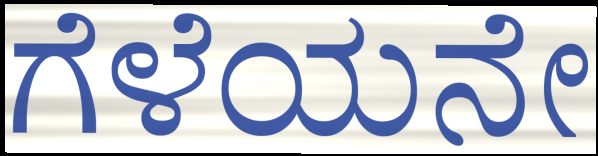
ಗೆಳೆಯನೇ